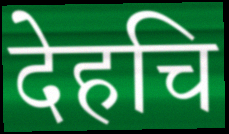
देहचि